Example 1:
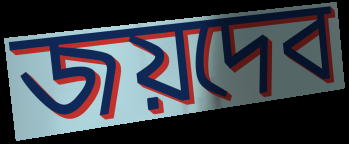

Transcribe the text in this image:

জয়দেব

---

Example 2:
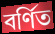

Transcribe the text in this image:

বর্ণিত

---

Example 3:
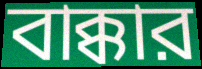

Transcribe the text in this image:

বাক্কার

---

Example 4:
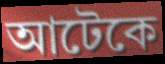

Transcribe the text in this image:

আটেকে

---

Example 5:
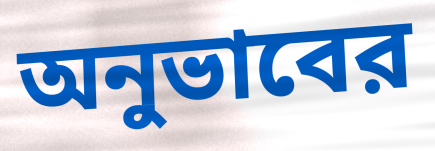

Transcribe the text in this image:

অনুভাবের